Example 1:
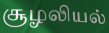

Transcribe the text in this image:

சூழலியல்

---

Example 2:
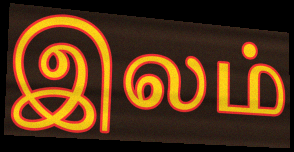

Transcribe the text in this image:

இலம்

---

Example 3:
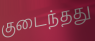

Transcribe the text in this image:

குடைந்தது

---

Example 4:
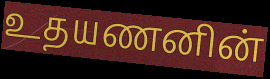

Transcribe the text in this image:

உதயணனின்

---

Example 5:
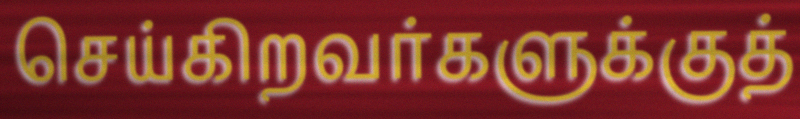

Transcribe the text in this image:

செய்கிறவர்களுக்குத்